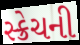
સ્ક્રેચની